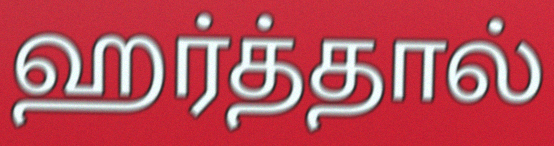
ஹர்த்தால்